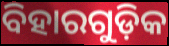
ବିହାରଗୁଡ଼ିକ